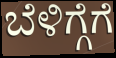
ಬೆಳಿಗ್ಗೆಗೆ